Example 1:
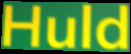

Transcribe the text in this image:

Huld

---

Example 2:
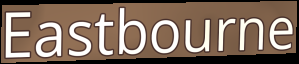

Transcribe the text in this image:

Eastbourne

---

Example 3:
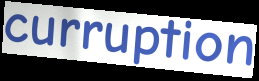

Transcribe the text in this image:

curruption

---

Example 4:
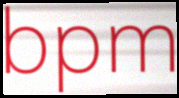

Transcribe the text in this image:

bpm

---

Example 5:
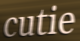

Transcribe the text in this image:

cutie